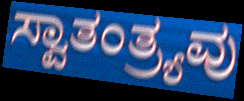
ಸ್ವಾತಂತ್ರ್ಯವು